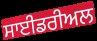
ਸਾਈਡਰੀਅਲ